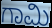
ಗಾಮಿ